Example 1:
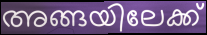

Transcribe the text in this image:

അങ്ങയിലേക്ക്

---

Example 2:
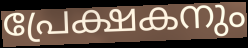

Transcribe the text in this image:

പ്രേക്ഷകനും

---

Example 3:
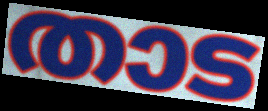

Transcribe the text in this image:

താട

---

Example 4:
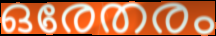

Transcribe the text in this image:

ഒരേതരം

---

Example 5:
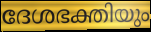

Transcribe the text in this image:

ദേശഭക്തിയും